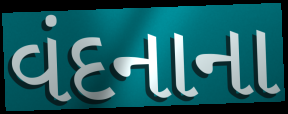
વંદનાના